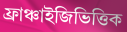
ফ্রাঞ্চাইজিভিত্তিক